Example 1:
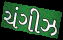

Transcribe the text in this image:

ચંગીઝ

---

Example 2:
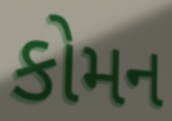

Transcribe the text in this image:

કોમન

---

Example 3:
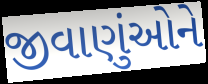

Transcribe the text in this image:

જીવાણુંઓને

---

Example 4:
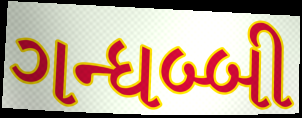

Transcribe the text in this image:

ગન્ધબ્બી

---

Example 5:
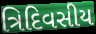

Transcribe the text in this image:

ત્રિદિવસીય